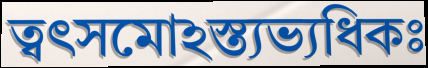
ত্বৎসমোঽস্ত্যভ্যধিকঃ